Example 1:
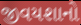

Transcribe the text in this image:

જીવયશાનો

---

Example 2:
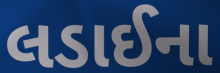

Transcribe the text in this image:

લડાઈના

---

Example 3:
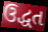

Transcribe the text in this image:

ઉદ્ધત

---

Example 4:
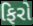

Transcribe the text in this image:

ફિરો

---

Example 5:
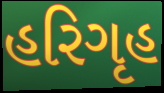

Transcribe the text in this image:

હરિગૃહ